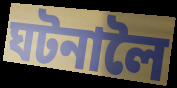
ঘটনালৈ